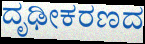
ದೃಢೀಕರಣದ